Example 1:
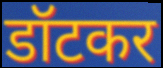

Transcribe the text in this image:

डॉटकर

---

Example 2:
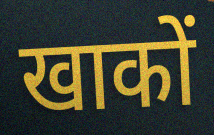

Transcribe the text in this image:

खाकों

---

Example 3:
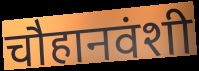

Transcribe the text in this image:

चौहानवंशी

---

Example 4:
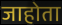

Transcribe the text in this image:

जाहोता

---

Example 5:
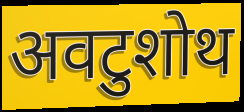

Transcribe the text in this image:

अवटुशोथ